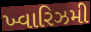
ખ્વારિઝમી